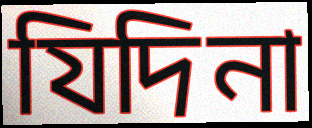
যিদিনা